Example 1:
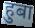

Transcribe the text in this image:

हुबा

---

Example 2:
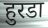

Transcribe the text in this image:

हुरडा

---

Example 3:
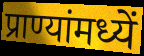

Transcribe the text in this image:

प्राण्यांमध्यें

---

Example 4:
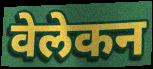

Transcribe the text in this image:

वेलेकन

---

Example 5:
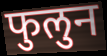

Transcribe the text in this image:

फुलुन